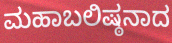
ಮಹಾಬಲಿಷ್ಠನಾದ